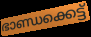
ഭാണ്ഡക്കെട്ട്